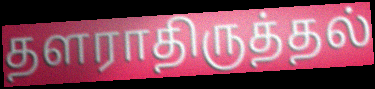
தளராதிருத்தல்